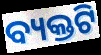
ବ୍ୟକ୍ତଟି